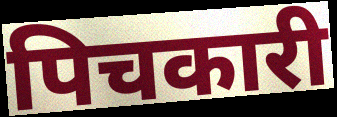
पिचकारी